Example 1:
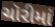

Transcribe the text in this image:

ચૉરીમાં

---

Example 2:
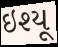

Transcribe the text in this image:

ઇશ્યૂ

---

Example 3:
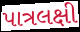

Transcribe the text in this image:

પાત્રલક્ષી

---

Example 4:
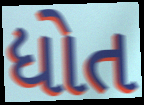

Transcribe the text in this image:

દ્યોત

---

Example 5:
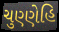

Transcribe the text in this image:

ચુણ્ણેહિ